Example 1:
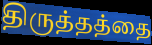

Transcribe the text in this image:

திருத்தத்தை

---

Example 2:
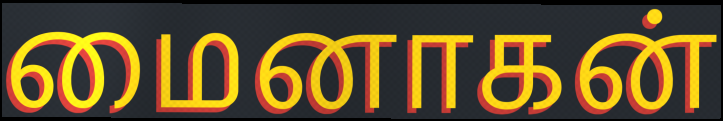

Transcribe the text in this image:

மைனாகன்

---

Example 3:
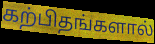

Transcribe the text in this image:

கற்பிதங்களால்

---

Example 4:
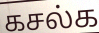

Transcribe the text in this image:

கசல்க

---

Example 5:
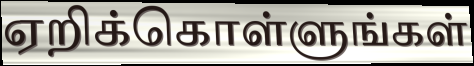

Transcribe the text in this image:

ஏறிக்கொள்ளுங்கள்